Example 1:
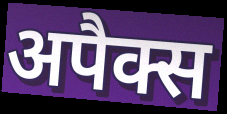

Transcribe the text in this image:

अपैक्स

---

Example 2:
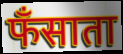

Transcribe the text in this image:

फँसाता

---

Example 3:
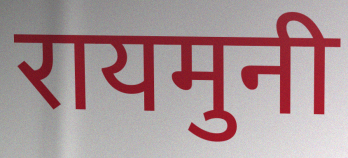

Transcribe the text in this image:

रायमुनी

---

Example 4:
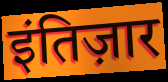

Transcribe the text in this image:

इंतिज़ार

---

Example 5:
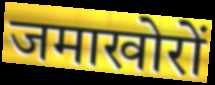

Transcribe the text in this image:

जमाखोरों